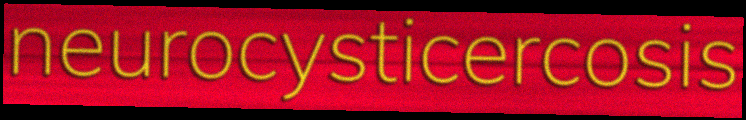
neurocysticercosis